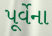
પૂર્વેના